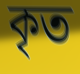
কৃত